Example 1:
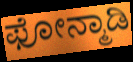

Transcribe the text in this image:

ಫೋನ್ಮಾಡಿ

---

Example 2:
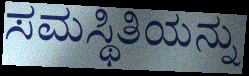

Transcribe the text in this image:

ಸಮಸ್ಥಿತಿಯನ್ನು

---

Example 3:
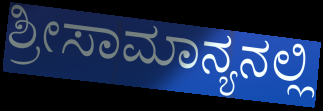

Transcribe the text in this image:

ಶ್ರೀಸಾಮಾನ್ಯನಲ್ಲಿ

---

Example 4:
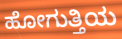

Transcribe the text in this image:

ಹೋಗುತ್ತಿಯ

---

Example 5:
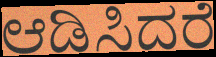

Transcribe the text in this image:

ಆಡಿಸಿದರೆ